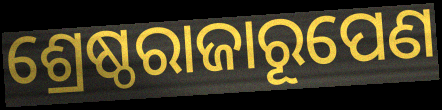
ଶ୍ରେଷ୍ଠରାଜାରୂପେଣ